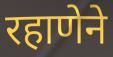
रहाणेने